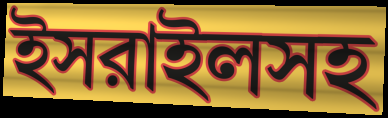
ইসরাইলসহ